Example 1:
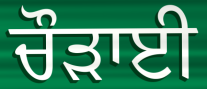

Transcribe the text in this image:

ਚੌੜਾਈ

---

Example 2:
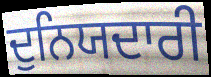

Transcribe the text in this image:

ਦੁਨਿਯਦਾਰੀ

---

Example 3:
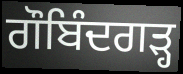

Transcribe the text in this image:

ਗੌਬਿੰਦਗੜ੍ਹ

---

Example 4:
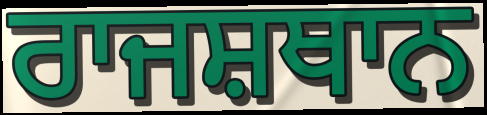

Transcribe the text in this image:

ਰਾਜਸ਼ਥਾਨ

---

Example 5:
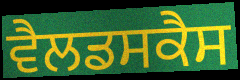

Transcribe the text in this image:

ਵੈਲਡਸਕੈਸ